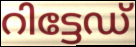
റിട്ടേഡ്